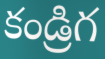
కండ్రిగ